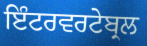
ਇੰਟਰਵਰਟੇਬ੍ਰਲ